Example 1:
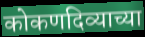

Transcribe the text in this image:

कोकणदिव्याच्या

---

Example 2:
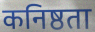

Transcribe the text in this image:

कनिष्ठता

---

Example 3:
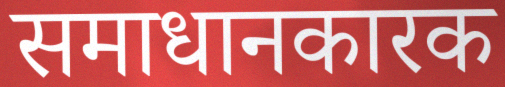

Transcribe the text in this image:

समाधानकारक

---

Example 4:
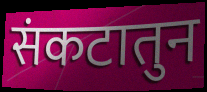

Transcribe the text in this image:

संकटातुन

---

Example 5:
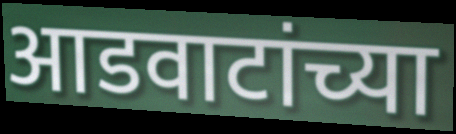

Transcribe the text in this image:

आडवाटांच्या